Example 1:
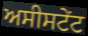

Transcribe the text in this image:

ਅਸੀਸਟੇਂਟ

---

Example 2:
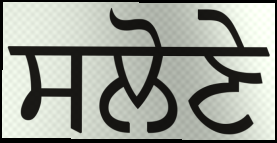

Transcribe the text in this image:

ਸਲੋਣੇ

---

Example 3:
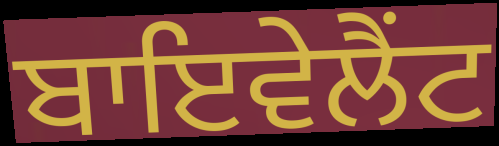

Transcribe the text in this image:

ਬਾਇਵੇਲੈਂਟ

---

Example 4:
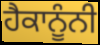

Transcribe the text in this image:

ਹੈਕਾਨੂੰਨੀ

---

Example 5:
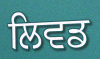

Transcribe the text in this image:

ਲਿਵਡ